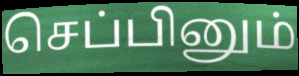
செப்பினும்